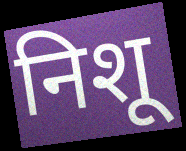
निशू